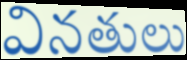
వినతులు